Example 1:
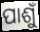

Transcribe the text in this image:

ପାଶୁଁ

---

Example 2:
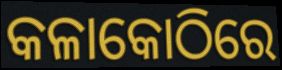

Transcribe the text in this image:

କଳାକୋଠିରେ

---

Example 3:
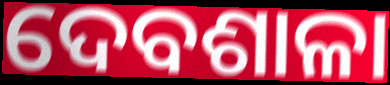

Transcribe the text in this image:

ଦେବଶାଳା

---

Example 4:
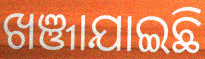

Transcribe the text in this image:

ଖଞ୍ଜାଯାଇଛି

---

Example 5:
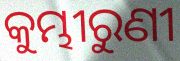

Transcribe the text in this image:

କୁମ୍ଭୀରୁଣୀ